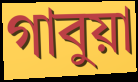
গাবুয়া